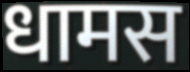
धामस